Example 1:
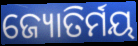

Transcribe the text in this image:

ଜ୍ୟୋତିର୍ମୟ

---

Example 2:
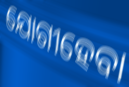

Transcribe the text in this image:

ଯୋଗୀହେବା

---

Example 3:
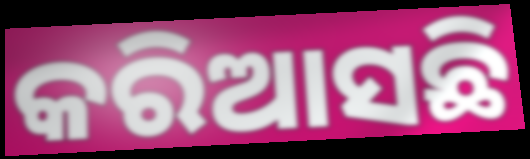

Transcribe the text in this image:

କରିଆସଛି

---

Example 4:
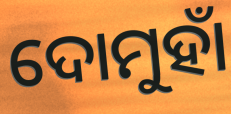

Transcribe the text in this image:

ଦୋମୁହାଁ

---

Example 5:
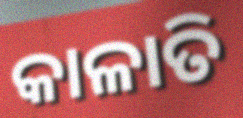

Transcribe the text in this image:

କାଳାତି